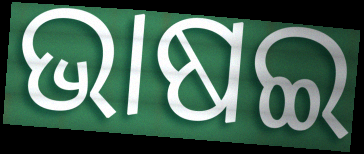
ଭାଷଇ